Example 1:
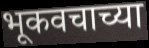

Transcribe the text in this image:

भूकवचाच्या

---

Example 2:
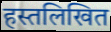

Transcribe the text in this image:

हस्तलिखित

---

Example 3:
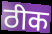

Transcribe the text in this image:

ठीक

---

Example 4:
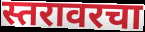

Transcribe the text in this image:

स्तरावरचा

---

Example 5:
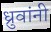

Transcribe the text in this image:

ध्रुवांनी